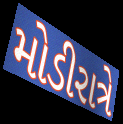
મોડીરાત્રે